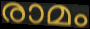
രാമം